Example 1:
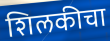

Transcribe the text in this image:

शिलकीचा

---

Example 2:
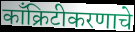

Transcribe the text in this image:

काँक्रिटीकरणाचे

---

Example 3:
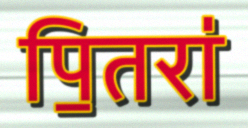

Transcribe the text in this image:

पि॒तरा॑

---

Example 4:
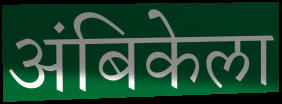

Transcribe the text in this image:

अंबिकेला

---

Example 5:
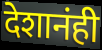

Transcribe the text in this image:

देशानंही